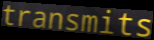
transmits